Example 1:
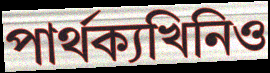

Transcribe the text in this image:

পাৰ্থক্যখিনিও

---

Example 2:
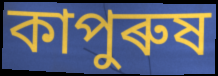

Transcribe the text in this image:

কাপুৰুষ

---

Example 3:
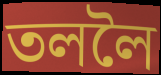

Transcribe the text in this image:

তললৈ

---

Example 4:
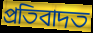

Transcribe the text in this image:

প্ৰতিবাদত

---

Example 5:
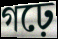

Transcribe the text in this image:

গঢ়ে